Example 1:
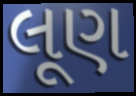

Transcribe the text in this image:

લૂણ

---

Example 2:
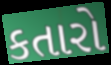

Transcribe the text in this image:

કતારો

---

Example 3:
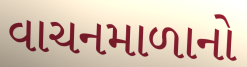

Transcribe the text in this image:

વાચનમાળાનો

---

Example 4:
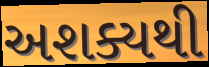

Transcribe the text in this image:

અશક્યથી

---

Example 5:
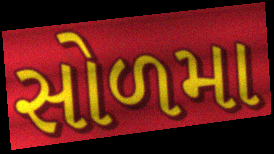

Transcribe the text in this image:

સોળમા